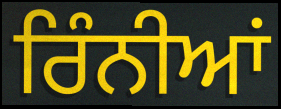
ਰਿੰਨੀਆਂ